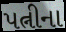
પત્નીના